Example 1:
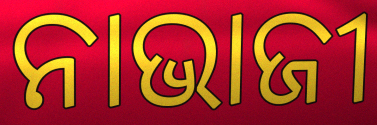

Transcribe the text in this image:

ନାଭାଜୀ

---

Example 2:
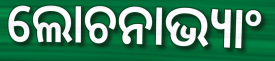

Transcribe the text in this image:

ଲୋଚନାଭ୍ୟାଂ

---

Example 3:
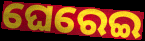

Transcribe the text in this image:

ଘେରେଇ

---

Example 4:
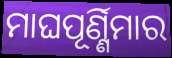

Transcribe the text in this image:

ମାଘପୂର୍ଣ୍ଣିମାର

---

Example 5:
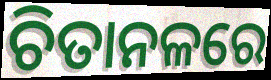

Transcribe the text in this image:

ଚିତାନଳରେ